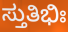
ಸ್ತುತಿಭಿಃ